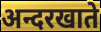
अन्दरखाते